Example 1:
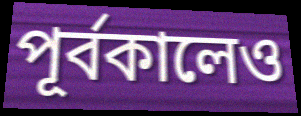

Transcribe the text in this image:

পূর্বকালেও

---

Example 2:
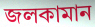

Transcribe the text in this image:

জলকামান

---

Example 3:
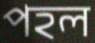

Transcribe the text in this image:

পহল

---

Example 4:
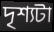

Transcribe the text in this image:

দৃশ্যটা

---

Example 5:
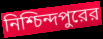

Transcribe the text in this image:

নিশ্চিন্দপুরের